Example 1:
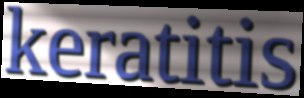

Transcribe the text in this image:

keratitis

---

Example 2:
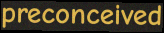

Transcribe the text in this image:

preconceived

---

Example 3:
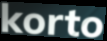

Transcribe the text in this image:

korto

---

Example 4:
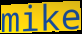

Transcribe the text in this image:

mike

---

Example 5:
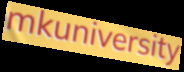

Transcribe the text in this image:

mkuniversity